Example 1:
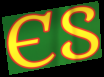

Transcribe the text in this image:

ES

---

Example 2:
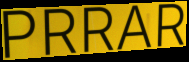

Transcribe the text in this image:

PRRAR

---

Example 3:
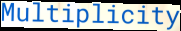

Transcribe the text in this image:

Multiplicity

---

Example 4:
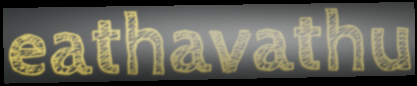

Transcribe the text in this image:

eathavathu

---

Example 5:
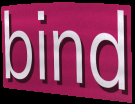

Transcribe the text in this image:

bind